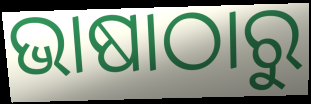
ଭାଷାଠାରୁ